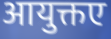
आयुक्तए